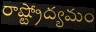
రాష్ట్రోద్యమం